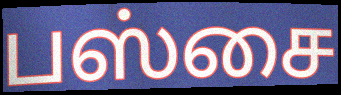
பஸ்சை